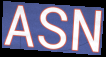
ASN